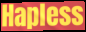
Hapless